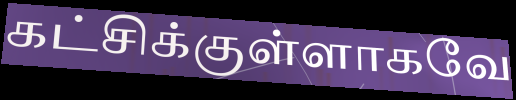
கட்சிக்குள்ளாகவே